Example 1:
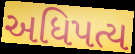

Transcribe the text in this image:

અધિપત્ય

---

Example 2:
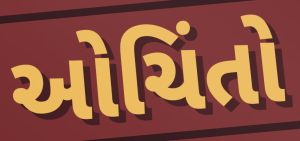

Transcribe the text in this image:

ઓચિંતો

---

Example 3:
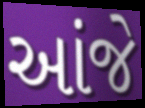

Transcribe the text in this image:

આંજે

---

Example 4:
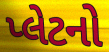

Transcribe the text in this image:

પ્લેટનો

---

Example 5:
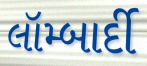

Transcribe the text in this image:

લૉમ્બાર્દી